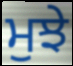
ਮੁਝੇ